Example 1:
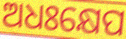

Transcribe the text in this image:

ଅଧଃକ୍ଷେପ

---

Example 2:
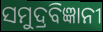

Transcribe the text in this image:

ସମୁଦ୍ରବିଜ୍ଞାନୀ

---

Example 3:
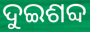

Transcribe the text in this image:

ଦୁଇଶବ୍ଦ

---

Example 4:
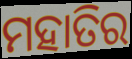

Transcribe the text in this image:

ମହାତିର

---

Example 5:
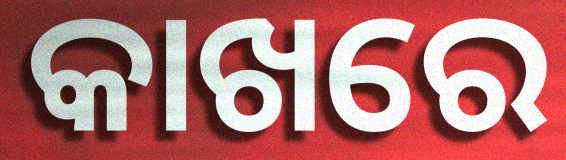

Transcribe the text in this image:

କାଖରେ